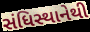
સંધિસ્થાનેથી